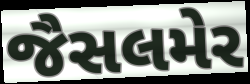
જૈસલમેર